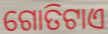
ଗୋତିଟାଏ